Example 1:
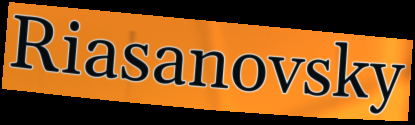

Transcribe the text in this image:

Riasanovsky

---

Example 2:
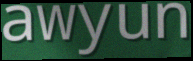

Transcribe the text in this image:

awyun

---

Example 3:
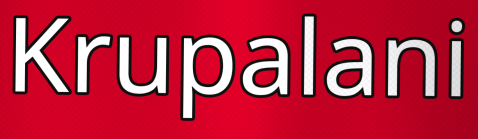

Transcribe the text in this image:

Krupalani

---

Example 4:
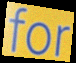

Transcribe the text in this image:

for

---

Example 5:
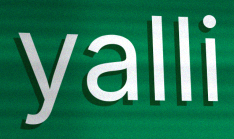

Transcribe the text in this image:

yalli